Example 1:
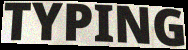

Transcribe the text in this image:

TYPING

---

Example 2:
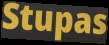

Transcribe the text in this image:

Stupas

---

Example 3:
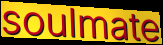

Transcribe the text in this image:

soulmate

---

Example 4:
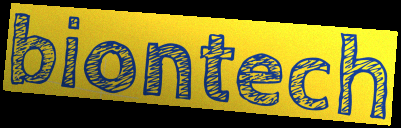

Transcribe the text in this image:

biontech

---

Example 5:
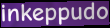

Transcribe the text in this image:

inkeppudo